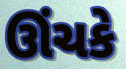
ઊંચકે